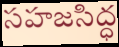
సహజసిద్ధ